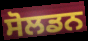
ਸੋਲਡਨ